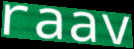
raav